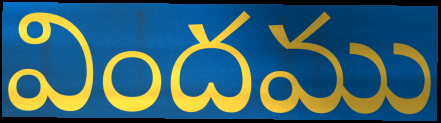
విందము